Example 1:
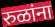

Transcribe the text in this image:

रुळांना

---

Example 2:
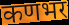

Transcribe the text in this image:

कणभर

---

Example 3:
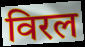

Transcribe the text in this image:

विरल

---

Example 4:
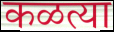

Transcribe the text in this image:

कळत्या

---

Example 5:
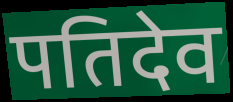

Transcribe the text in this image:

पतिदेव